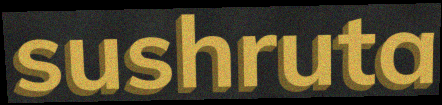
sushruta